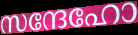
സന്ദേഹോ